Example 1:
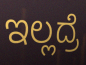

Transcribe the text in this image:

ಇಲ್ಲದ್ರೆ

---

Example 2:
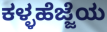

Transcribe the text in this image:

ಕಳ್ಳಹೆಜ್ಜೆಯ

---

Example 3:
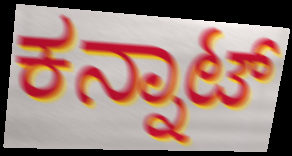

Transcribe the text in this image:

ಕನ್ನಾಟ್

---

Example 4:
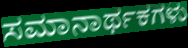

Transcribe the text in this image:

ಸಮಾನಾರ್ಥಕಗಳು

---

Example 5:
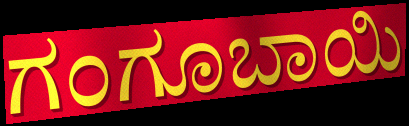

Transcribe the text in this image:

ಗಂಗೂಬಾಯಿ